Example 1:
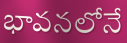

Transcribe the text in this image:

భావనలోనే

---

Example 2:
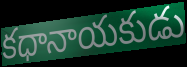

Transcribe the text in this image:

కధానాయకుడు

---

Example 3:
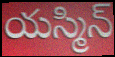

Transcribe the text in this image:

యస్మిన్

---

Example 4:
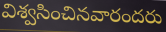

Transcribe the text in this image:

విశ్వసించినవారందరు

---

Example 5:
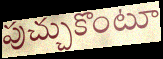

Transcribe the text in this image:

పుచ్చుకొంటూ